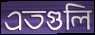
এতগুলি